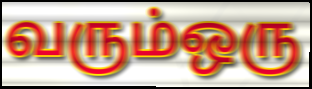
வரும்ஒரு